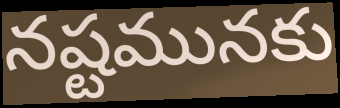
నష్టమునకు